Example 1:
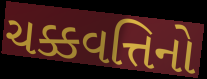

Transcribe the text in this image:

ચક્કવત્તિનો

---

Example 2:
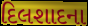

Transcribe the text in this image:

દિલશાદના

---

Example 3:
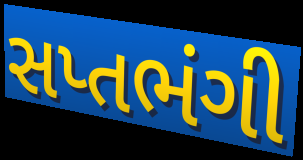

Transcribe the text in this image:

સપ્તભંગી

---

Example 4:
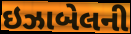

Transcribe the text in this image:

ઇઝાબેલની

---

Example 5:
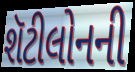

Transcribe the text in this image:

શૅટીલોનની